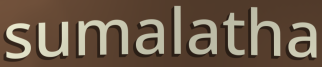
sumalatha